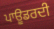
ਪਾਊਡਰਦੀ